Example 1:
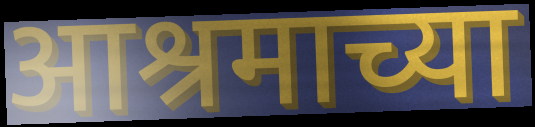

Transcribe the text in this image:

आश्रमाच्या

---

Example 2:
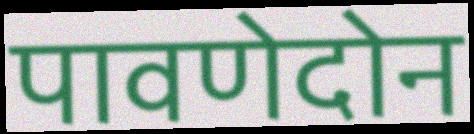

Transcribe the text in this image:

पावणेदोन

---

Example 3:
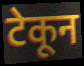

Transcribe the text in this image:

टेकून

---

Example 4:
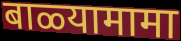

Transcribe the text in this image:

बाळ्यामामा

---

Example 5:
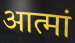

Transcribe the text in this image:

आत्मां